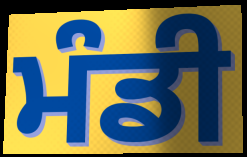
ਮੰਡੀ